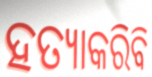
ହତ୍ୟାକରିବି